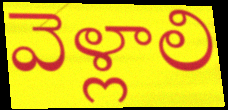
వెళ్లాలి